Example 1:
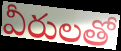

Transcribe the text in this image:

వీరులతో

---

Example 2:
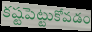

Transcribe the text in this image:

కష్టపెట్టుకోవడం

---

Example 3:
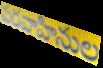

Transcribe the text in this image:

పరవాహినుల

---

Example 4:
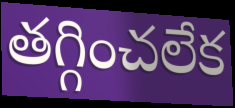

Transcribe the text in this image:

తగ్గించలేక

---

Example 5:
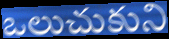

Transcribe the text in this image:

ఒలుచుకుని